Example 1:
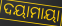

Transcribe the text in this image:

ଦୟାମାୟା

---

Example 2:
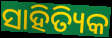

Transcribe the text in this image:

ସାହିତ୍ୟିକ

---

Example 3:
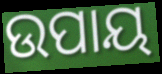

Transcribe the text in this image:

ଉପାୟ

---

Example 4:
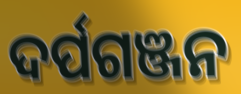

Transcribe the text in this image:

ଦର୍ପଗଞ୍ଜନ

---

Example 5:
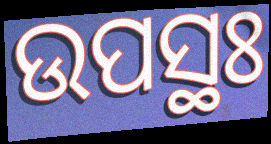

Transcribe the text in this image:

ଉପସ୍ଥଃ